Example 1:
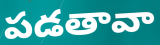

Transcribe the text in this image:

పడతావా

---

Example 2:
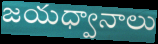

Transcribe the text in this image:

జయధ్వానాలు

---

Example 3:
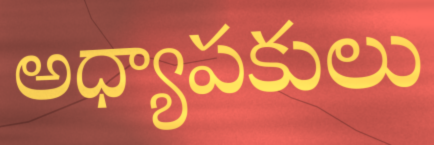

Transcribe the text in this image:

అధ్యాపకులు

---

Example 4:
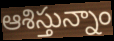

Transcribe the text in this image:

ఆశిస్తున్నాం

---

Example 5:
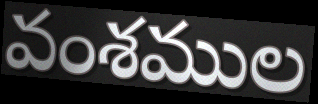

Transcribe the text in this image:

వంశముల